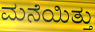
ಮನೆಯಿತ್ತು